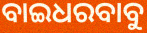
ବାଇଧରବାବୁ